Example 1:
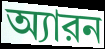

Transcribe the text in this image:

অ্যারন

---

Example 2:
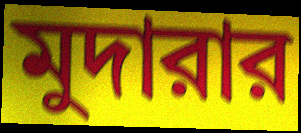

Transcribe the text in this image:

মুদারার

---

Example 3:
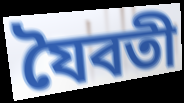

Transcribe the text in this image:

যৈবতী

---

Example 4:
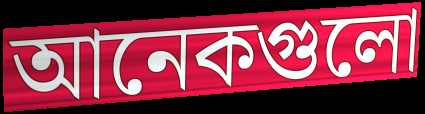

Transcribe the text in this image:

আনেকগুলো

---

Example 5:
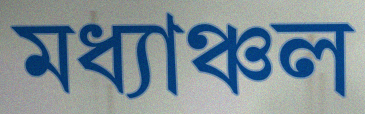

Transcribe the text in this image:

মধ্যাঞ্চল